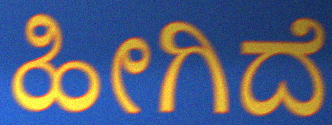
ಹೀಗಿದೆ